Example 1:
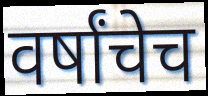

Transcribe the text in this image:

वर्षांचेच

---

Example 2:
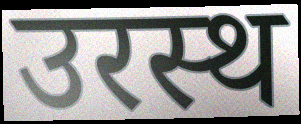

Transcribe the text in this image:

उरस्थ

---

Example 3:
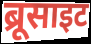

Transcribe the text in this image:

ब्रूसाइट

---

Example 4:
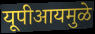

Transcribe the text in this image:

यूपीआयमुळे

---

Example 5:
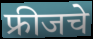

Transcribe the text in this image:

फ्रीजचे